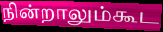
நின்றாலும்கூட